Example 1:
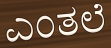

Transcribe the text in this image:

ಎಂತಲೆ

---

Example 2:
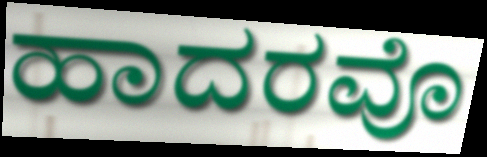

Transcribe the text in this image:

ಹಾದರವೊ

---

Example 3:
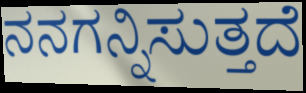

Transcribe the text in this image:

ನನಗನ್ನಿಸುತ್ತದೆ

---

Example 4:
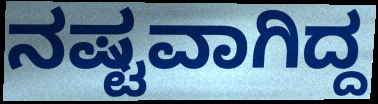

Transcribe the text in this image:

ನಷ್ಟವಾಗಿದ್ದ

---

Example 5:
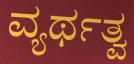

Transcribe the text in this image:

ವ್ಯರ್ಥತ್ವ